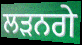
ਲੜਨਗੇ